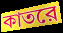
কাতরে